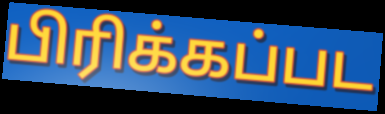
பிரிக்கப்பட